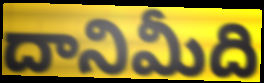
దానిమీది